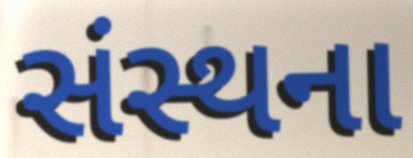
સંસ્થના